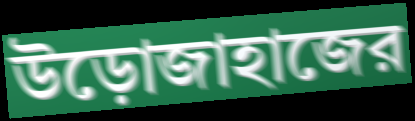
উড়োজাহাজের